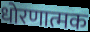
धोरणात्मक